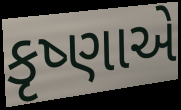
કૃષ્ણાએ